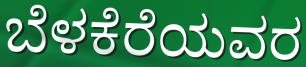
ಬೆಳಕೆರೆಯವರ